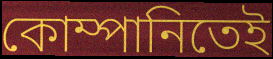
কোম্পানিতেই